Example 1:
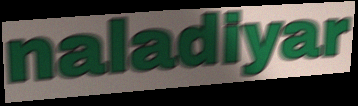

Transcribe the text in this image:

naladiyar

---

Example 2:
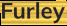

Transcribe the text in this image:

Furley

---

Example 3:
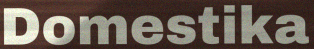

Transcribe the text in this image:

Domestika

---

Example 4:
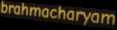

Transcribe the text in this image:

brahmacharyam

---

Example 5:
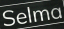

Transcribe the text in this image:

Selma